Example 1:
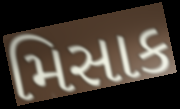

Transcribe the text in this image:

મિસાક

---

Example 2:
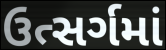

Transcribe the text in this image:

ઉત્સર્ગમાં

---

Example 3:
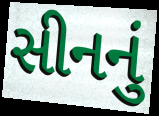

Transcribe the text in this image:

સીનનું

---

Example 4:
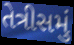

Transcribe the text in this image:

તેત્રીસમું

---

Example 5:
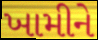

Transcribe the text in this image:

ખામીને